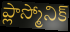
ప్లాస్మోనిక్